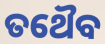
ତଥୈବ